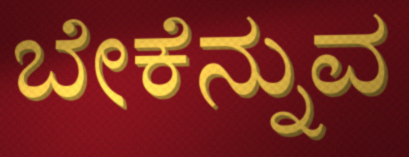
ಬೇಕೆನ್ನುವ